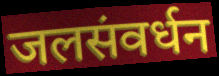
जलसंवर्धन